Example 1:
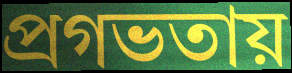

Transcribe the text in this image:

প্রগভতায়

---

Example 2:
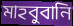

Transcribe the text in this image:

মাহবুবানি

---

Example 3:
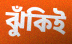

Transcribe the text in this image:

ঝুঁকিই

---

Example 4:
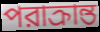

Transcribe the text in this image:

পরাক্রান্ত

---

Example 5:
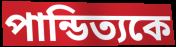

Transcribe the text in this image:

পান্ডিত্যকে